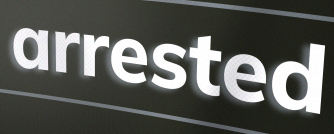
arrested